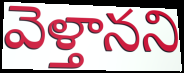
వెళ్తానని